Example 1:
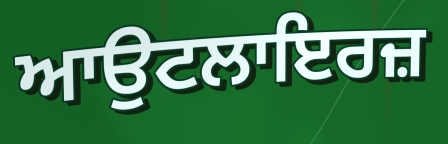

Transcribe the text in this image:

ਆਉਟਲਾਇਰਜ਼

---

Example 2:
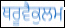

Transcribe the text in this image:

ਥਰੂਵੈਕੁਲਮ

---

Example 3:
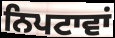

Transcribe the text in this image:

ਨਿਪਟਾਵਾਂ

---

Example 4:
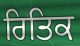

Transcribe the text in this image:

ਰਿਤਿਕ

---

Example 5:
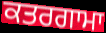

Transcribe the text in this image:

ਕਤਰਗਾਮਾ